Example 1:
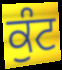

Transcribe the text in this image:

ਕੁੰਟ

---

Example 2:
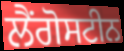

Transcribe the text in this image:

ਲੈਂਗੋਸਟੀਨ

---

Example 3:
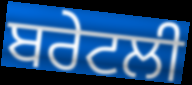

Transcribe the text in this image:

ਬਰੇਟਲੀ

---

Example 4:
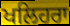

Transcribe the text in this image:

ਖਲਿਹਰਾ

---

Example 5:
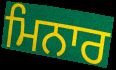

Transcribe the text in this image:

ਮਿਨਾਰ